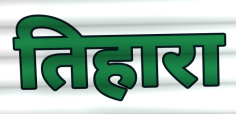
तिहारा